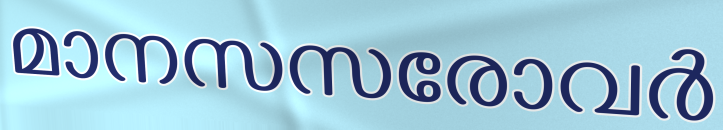
മാനസസരോവർ